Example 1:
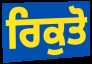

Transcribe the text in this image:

ਰਿਕੁਤੋ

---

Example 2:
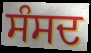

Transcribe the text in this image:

ਸੰਸਦ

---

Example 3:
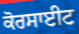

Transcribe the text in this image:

ਕੋਰਸਾਈਟ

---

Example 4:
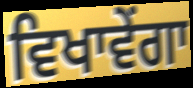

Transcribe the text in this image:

ਵਿਖਾਵੇਂਗਾ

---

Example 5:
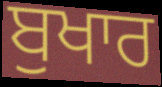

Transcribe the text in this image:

ਬੁਖਾਰ